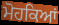
ਮੋਹਕਿਆਂ